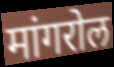
मांगरोल